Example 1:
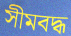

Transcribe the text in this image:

সীমবদ্ধ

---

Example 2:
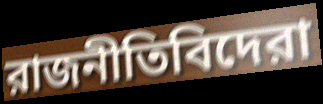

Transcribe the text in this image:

রাজনীতিবিদেরা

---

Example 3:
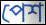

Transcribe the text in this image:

পেশ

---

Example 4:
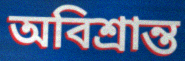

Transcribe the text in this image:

অবিশ্রান্ত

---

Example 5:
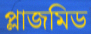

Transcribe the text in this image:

প্লাজমিড